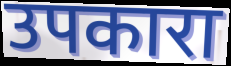
उपकारा